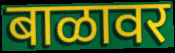
बाळावर